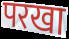
परखा